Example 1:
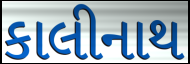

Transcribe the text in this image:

કાલીનાથ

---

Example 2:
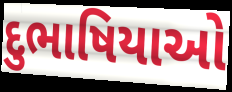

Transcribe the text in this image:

દુભાષિયાઓ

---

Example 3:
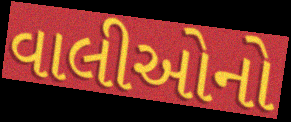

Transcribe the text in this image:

વાલીઓનો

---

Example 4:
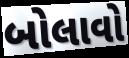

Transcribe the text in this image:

બોલાવો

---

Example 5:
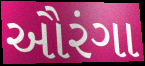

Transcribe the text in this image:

ઔરંગા